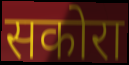
सकोरा